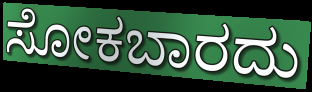
ಸೋಕಬಾರದು